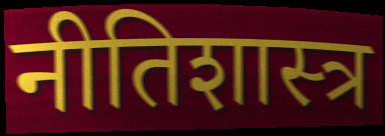
नीतिशास्त्र